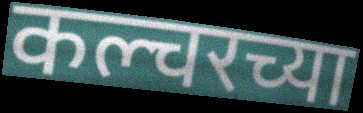
कल्चरच्या